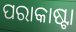
ପରାକାଷ୍ଟା